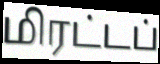
மிரட்டப்